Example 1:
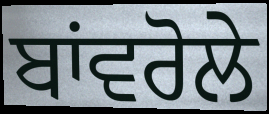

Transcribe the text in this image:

ਬਾਂਵਰੋਲੇ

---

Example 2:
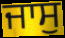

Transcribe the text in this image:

ਜਾਸੁ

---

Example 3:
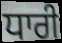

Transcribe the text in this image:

ਧਾਰੀ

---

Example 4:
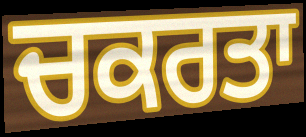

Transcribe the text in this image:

ਚਕਰਤਾ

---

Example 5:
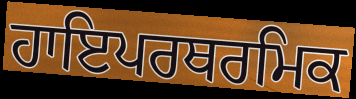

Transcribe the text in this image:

ਹਾਇਪਰਥਰਮਿਕ